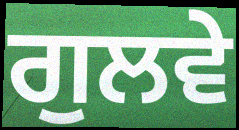
ਗੁਲਵੇ